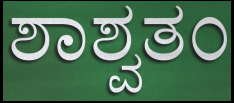
ಶಾಶ್ವತಂ